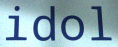
idol